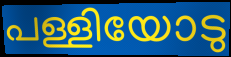
പള്ളിയോടു